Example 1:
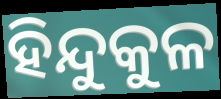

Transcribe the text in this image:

ହିନ୍ଦୁକୁଳ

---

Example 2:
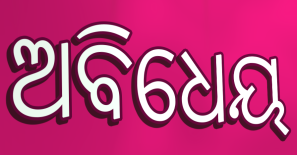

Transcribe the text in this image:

ଅବିଧେୟ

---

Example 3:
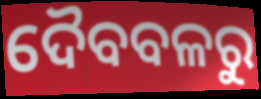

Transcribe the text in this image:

ଦୈବବଳରୁ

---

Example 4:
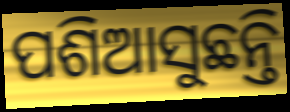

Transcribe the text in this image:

ପଶିଆସୁଛନ୍ତି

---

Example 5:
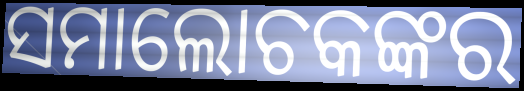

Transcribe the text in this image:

ସମାଲୋଚକଙ୍କର